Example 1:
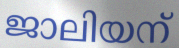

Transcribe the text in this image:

ജാലിയന്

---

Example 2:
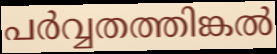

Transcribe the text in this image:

പർവ്വതത്തിങ്കൽ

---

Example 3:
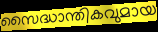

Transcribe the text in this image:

സൈദ്ധാന്തികവുമായ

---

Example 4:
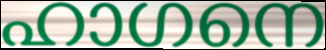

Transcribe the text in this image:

ഹാഗനെ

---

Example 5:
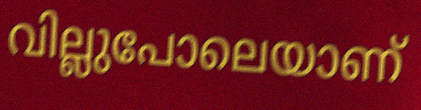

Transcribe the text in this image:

വില്ലുപോലെയാണ്